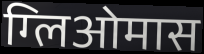
ग्लिओमास